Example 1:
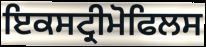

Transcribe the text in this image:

ਇਕਸਟ੍ਰੀਮੋਫਿਲਸ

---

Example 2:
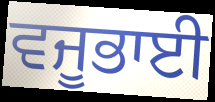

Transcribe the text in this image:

ਵਜੂਭਾਈ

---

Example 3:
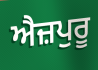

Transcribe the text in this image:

ਐਜ਼ਪੁਰੂ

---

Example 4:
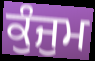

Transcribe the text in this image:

ਕੁੰਜੁਮ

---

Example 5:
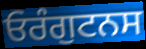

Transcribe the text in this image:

ਓਰੰਗੁਟਨਸ